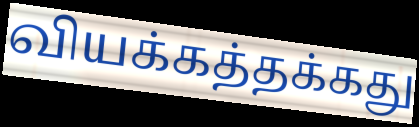
வியக்கத்தக்கது